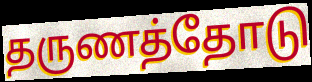
தருணத்தோடு